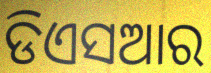
ଡିଏସଆର